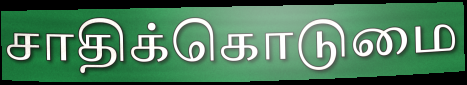
சாதிக்கொடுமை